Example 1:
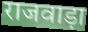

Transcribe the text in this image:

राजवाड़ा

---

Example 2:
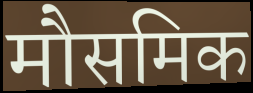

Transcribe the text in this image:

मौसमिक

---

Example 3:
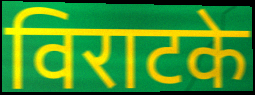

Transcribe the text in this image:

विराटके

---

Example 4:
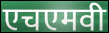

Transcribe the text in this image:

एचएमवी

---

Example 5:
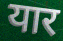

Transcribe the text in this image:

यार